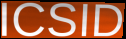
ICSID